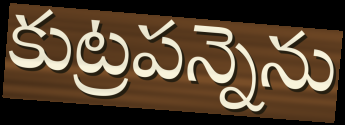
కుట్రపన్నెను